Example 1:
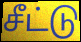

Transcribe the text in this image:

சீட்டு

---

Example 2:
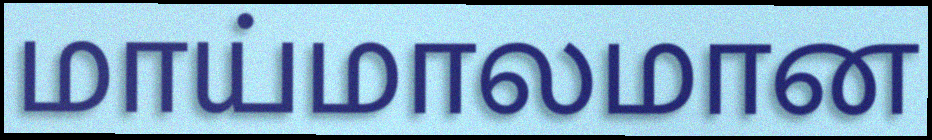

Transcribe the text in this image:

மாய்மாலமான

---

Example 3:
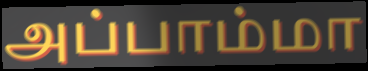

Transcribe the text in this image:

அப்பாம்மா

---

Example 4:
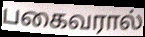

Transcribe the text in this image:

பகைவரால்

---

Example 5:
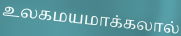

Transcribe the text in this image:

உலகமயமாக்கலால்